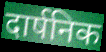
दार्षनिक